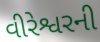
વીરેશ્વરની